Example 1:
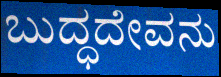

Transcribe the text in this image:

ಬುದ್ಧದೇವನು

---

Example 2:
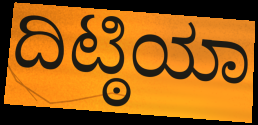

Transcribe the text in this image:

ದಿಟ್ಠಿಯಾ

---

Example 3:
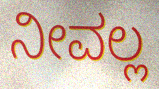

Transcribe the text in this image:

ನೀವಲ್ಲ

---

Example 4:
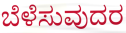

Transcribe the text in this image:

ಬೆಳೆಸುವುದರ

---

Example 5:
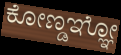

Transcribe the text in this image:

ಕೋಣ್ಡಞ್ಞೋ